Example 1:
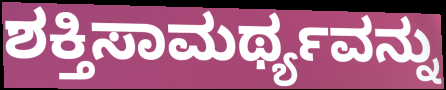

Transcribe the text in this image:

ಶಕ್ತಿಸಾಮರ್ಥ್ಯವನ್ನು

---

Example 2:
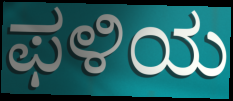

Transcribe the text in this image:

ಫಳಿಯ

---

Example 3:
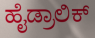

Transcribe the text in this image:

ಹೈಡ್ರಾಲಿಕ್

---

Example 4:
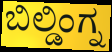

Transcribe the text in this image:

ಬಿಲ್ಡಿಂಗ್ನ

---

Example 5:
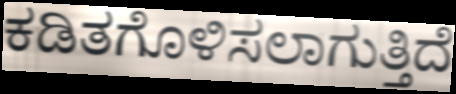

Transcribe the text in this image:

ಕಡಿತಗೊಳಿಸಲಾಗುತ್ತಿದೆ